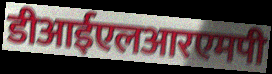
डीआईएलआरएमपी